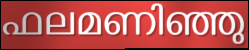
ഫലമണിഞ്ഞു